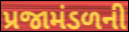
પ્રજામંડળની